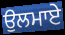
ਉਲਮਾਏ